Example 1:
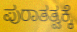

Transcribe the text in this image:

ಪುರಾತತ್ವಕ್ಕೆ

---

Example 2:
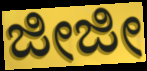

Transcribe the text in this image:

ಜೀಜೀ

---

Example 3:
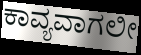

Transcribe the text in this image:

ಕಾವ್ಯವಾಗಲೀ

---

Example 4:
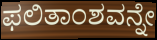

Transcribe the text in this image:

ಫಲಿತಾಂಶವನ್ನೇ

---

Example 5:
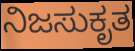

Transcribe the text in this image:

ನಿಜಸುಕೃತ